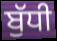
ਬੁੱਧੀ